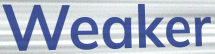
Weaker